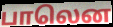
பாலென